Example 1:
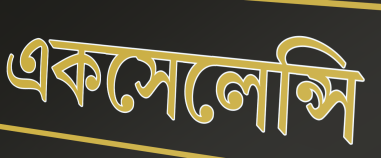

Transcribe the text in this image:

একসেলেন্সি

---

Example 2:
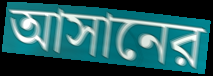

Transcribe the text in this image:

আসানের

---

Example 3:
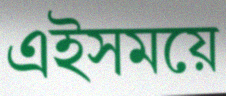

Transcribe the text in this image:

এইসময়ে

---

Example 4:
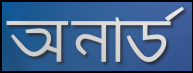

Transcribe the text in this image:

অনার্ড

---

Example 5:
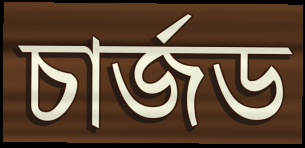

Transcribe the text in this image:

চার্জড